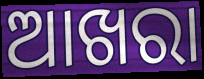
ଆଖରା